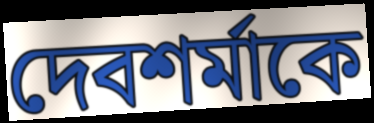
দেবশর্মাকে